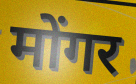
मोंगर